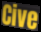
Cive